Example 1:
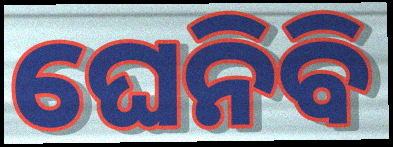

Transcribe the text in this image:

ଘେନିବି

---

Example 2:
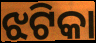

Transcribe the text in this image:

ଝଟିକା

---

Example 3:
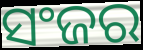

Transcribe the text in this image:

ସଂଜର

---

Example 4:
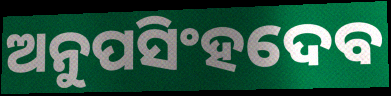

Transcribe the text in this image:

ଅନୁପସିଂହଦେବ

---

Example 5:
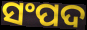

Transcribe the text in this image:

ସଂପଦ